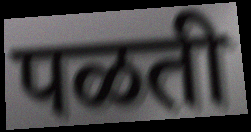
पळती